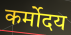
कर्मोदय